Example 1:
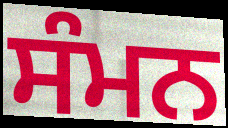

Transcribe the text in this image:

ਸੰਮਨ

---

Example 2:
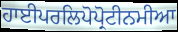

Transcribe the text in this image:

ਹਾਈਪਰਲਿਪੋਪ੍ਰੋਟੀਨਮੀਆ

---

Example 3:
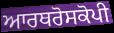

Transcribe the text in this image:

ਆਰਥਰੋਸਕੋਪੀ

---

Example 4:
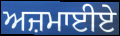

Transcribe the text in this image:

ਅਜ਼ਮਾਈਏ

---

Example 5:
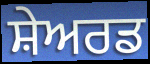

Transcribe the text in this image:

ਸ਼ੇਅਰਡ